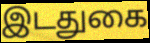
இடதுகை